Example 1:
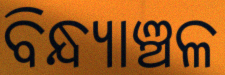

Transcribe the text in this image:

ବିନ୍ଧ୍ୟାଞ୍ଚଳ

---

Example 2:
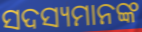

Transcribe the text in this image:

ସଦସ୍ୟମାନଙ୍କ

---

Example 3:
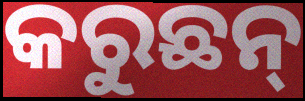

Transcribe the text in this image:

କରୁଛନ୍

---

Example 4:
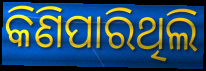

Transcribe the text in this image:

କିଣିପାରିଥିଲି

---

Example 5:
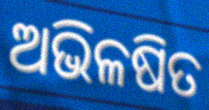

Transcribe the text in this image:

ଅଭିଳଷିତ